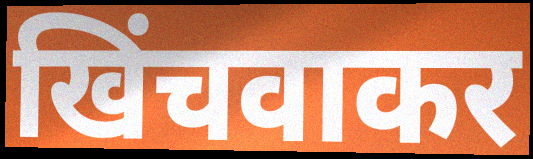
खिंचवाकर